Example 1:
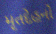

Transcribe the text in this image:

મૃતદેહનો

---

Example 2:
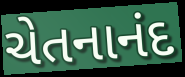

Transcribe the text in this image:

ચેતનાનંદ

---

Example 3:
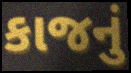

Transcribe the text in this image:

કાજનું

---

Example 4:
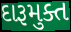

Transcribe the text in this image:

દારૂમુક્ત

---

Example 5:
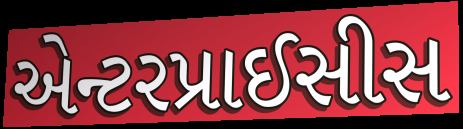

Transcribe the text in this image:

એન્ટરપ્રાઈસીસ